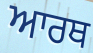
ਆਰਥ